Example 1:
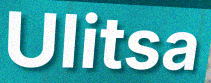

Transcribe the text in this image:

Ulitsa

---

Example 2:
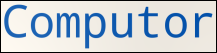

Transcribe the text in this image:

Computor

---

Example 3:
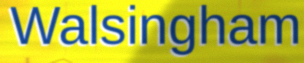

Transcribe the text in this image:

Walsingham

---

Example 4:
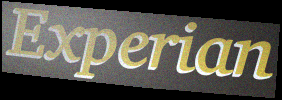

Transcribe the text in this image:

Experian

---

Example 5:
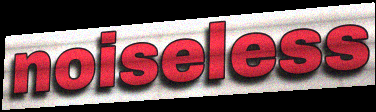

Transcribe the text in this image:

noiseless